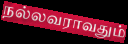
நல்லவராவதும்